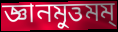
জ্ঞানমুত্তমম্